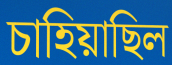
চাহিয়াছিল